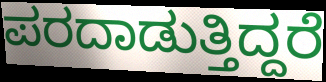
ಪರದಾಡುತ್ತಿದ್ದರೆ